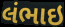
લંભાઇ